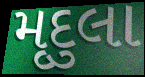
મૃદુલા